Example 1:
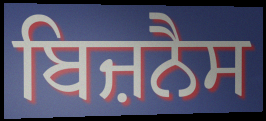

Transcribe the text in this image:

ਬਿਜ਼ਨੈਸ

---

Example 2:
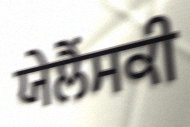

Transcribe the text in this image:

ਯੇਲੈਂਸਕੀ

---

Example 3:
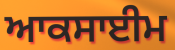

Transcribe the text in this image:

ਆਕਸਾਈਮ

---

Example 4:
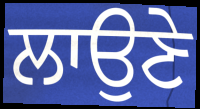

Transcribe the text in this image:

ਲਾਉਣੇ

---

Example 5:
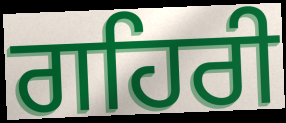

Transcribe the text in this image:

ਗਹਿਰੀ